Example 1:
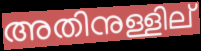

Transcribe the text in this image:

അതിനുള്ളില്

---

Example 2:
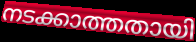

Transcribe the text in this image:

നടക്കാത്തതായി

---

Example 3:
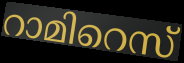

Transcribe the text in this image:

റാമിറെസ്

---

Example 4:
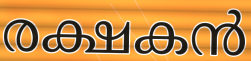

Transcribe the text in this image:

രക്ഷകൻ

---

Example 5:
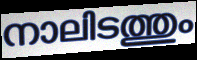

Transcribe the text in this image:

നാലിടത്തും